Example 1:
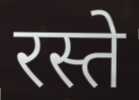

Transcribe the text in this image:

रस्ते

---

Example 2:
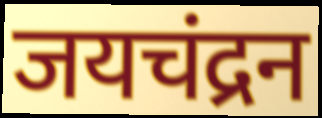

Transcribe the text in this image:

जयचंद्रन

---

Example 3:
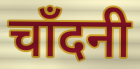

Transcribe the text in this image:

चाँदनी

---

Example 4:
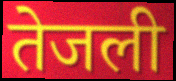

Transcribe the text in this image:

तेजली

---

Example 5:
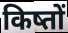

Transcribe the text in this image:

किष्तों